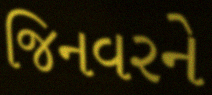
જિનવરને